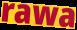
rawa